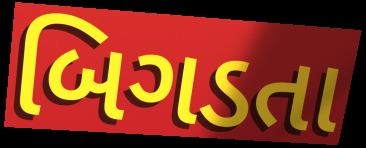
બિગડતા